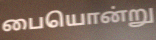
பையொன்று